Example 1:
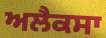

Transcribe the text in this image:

ਅਲੈਕਸਾ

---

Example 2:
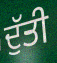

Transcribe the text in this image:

ਦੁੱਤੀ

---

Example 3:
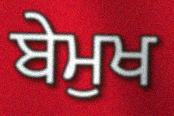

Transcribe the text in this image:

ਬੇਮੁਖ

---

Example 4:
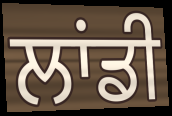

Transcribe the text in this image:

ਲਾਂਡੀ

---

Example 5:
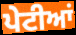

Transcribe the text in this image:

ਪੇਟੀਆਂ